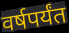
वर्षपर्यंत